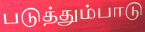
படுத்தும்பாடு